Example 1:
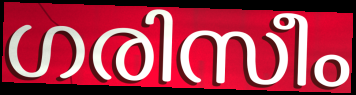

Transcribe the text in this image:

ഗരിസീം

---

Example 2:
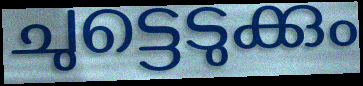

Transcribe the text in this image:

ചുട്ടെടുക്കും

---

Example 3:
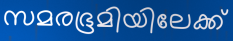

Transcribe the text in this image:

സമരഭൂമിയിലേക്ക്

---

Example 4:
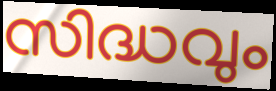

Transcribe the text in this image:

സിദ്ധവും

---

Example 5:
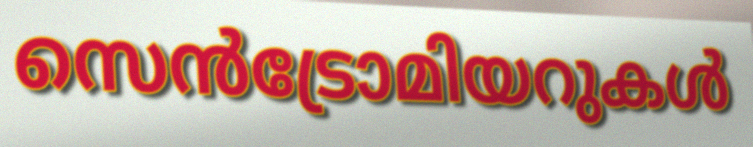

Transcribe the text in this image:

സെൻട്രോമിയറുകൾ